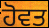
ਹੋਵਤ